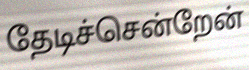
தேடிச்சென்றேன்